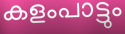
കളംപാട്ടും